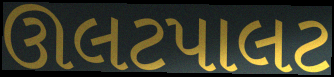
ઊલટપાલટ